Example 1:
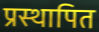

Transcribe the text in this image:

प्रस्थापित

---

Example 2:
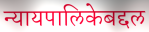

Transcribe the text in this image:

न्यायपालिकेबद्दल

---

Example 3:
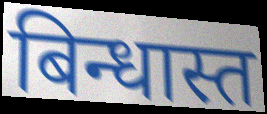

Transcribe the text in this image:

बिन्धास्त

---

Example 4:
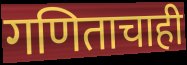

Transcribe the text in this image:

गणिताचाही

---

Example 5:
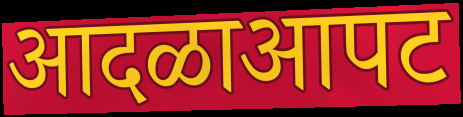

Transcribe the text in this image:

आदळाआपट